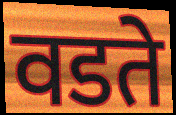
वडते